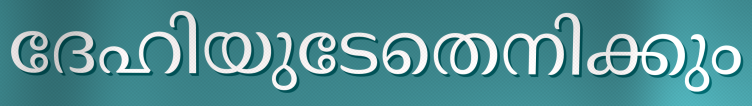
ദേഹിയുടേതെനിക്കും